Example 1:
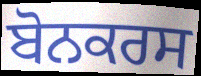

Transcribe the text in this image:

ਬੋਨਕਰਸ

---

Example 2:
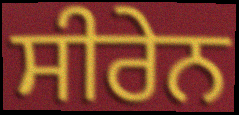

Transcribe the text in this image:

ਸੀਰੇਨ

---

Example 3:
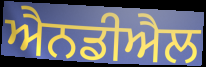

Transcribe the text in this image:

ਐਨਡੀਐਲ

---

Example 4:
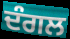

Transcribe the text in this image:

ਦੰਗਲ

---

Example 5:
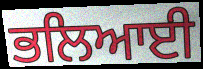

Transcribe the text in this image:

ਭਲਿਆਈ